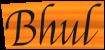
Bhul